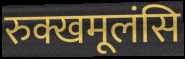
रुक्खमूलंसि